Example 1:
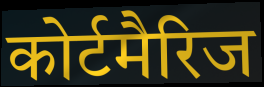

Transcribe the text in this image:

कोर्टमैरिज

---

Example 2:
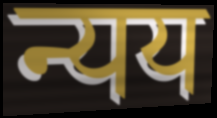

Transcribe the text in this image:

न्यय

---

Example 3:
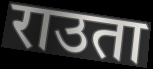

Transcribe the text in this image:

राउता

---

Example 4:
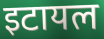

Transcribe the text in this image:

इटायल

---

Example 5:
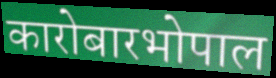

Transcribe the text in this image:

कारोबारभोपाल